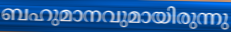
ബഹുമാനവുമായിരുന്നു